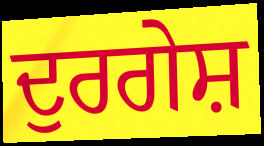
ਦੁਰਗੇਸ਼